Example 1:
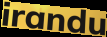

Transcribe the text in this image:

irandu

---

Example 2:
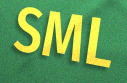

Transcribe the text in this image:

SML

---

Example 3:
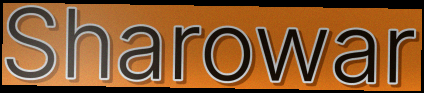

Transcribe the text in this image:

Sharowar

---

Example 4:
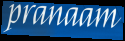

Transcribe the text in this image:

pranaam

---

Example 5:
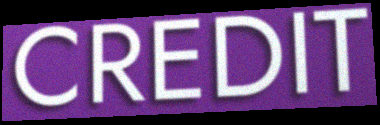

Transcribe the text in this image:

CREDIT